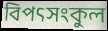
বিপৎসংকুল